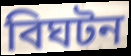
বিঘটন